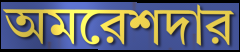
অমরেশদার